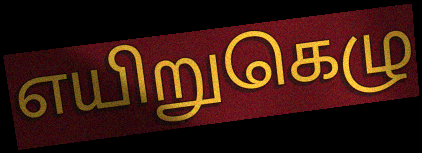
எயிறுகெழு